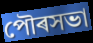
পৌৰসভা